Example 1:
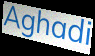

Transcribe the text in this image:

Aghadi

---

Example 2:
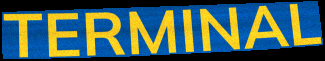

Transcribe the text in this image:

TERMINAL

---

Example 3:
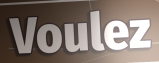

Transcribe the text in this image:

Voulez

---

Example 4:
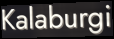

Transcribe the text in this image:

Kalaburgi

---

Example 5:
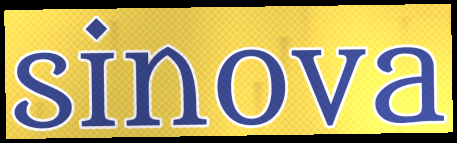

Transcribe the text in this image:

sinova